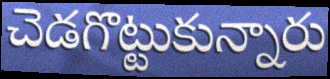
చెడగొట్టుకున్నారు